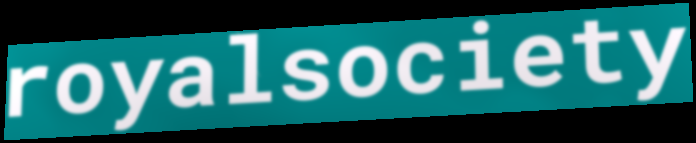
royalsociety